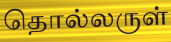
தொல்லருள்